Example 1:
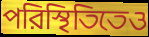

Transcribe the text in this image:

পরিস্থিতিতেও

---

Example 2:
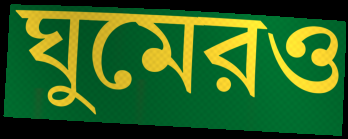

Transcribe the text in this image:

ঘুমেরও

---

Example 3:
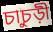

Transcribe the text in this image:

চাচুড়ী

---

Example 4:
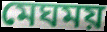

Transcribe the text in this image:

মেঘময়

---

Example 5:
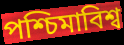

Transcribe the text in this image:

পশ্চিমাবিশ্ব